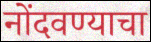
नोंदवण्याचा